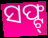
ସଫ୍ଟ୍